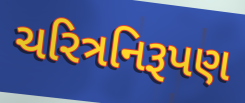
ચરિત્રનિરૂપણ